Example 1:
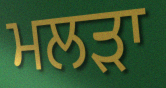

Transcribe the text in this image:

ਮਲੜਾ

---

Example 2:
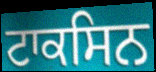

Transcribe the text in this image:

ਟਾਕਸਿਨ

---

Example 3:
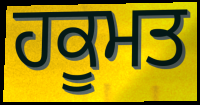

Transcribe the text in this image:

ਹਕੂਮਤ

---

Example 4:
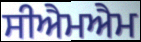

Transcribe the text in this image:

ਸੀਐਮਐਮ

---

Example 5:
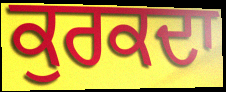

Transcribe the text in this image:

ਕੁਰਕਦਾ